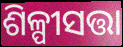
ଶିଳ୍ପୀସତ୍ତା